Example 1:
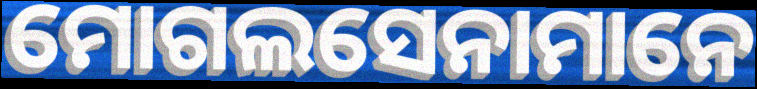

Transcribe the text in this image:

ମୋଗଲସେନାମାନେ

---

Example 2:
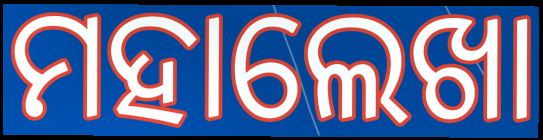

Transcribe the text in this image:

ମହାଲେଖା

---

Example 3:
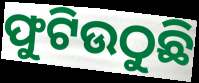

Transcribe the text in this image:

ଫୁଟିଉଠୁଛି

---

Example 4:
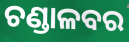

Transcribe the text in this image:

ଚଣ୍ଡାଳବର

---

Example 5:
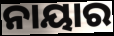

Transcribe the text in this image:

ନାୟାର